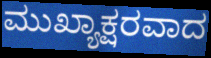
ಮುಖ್ಯಾಕ್ಷರವಾದ